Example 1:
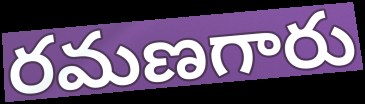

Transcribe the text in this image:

రమణగారు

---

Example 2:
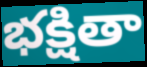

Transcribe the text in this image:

భక్షితా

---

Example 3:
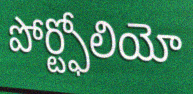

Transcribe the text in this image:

పోర్ట్ఫోలియో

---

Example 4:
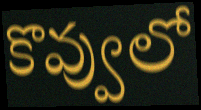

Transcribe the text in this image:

కొవ్వులో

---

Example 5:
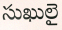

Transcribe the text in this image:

సుఖులై